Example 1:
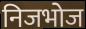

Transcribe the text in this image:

निजभोज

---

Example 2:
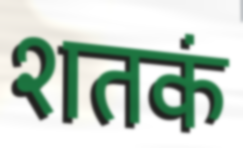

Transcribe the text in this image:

शतकं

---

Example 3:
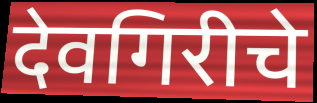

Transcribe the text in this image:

देवगिरीचे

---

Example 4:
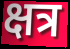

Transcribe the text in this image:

क्षत्र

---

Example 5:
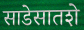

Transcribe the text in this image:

साडेसातशे